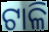
ଟାଳି